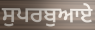
ਸੁਪਰਬੁਆਏ